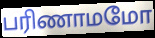
பரிணாமமோ